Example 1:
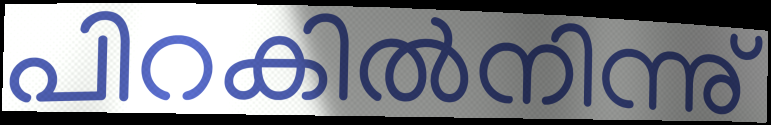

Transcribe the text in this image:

പിറകിൽനിന്നു്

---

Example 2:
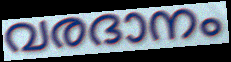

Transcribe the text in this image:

വരദാനം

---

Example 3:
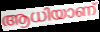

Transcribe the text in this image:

ആധിയാണ്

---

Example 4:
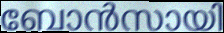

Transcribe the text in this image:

ബോൻസായി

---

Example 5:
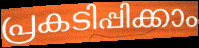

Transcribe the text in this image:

പ്രകടിപ്പിക്കാം